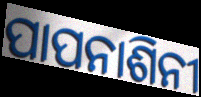
ପାପନାଶିନୀ